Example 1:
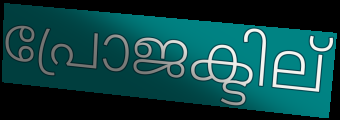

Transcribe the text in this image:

പ്രോജക്ടില്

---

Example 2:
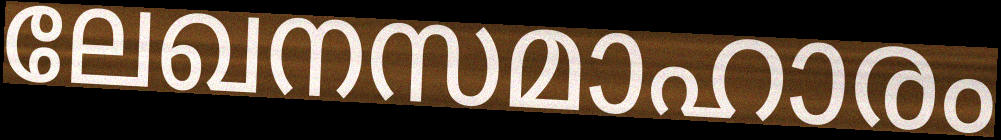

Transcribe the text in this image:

ലേഖനസമാഹാരം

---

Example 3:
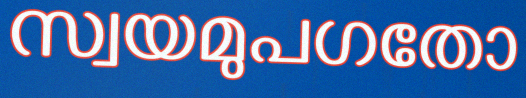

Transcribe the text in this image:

സ്വയമുപഗതോ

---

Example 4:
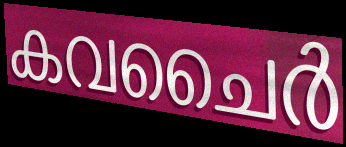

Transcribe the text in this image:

കവചൈർ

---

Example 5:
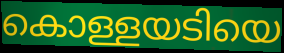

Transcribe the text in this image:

കൊള്ളയടിയെ